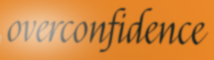
overconfidence